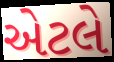
એટલે